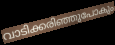
വാടിക്കരിഞ്ഞുപോകും